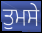
ਤੁਮਸੇ